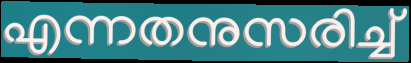
എന്നതനുസരിച്ച്